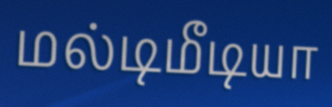
மல்டிமீடியா